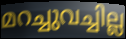
മറച്ചുവച്ചില്ല